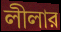
লীলার